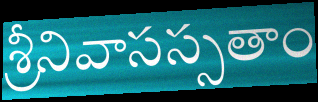
శ్రీనివాసస్సతాం